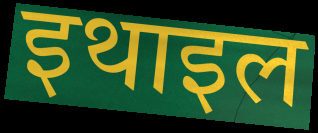
इथाइल